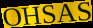
OHSAS